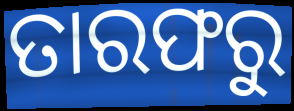
ତାରଫରୁ